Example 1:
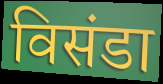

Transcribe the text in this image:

विसंडा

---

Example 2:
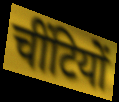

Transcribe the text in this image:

चींटियों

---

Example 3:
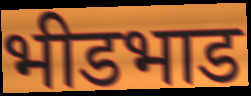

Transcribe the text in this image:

भीडभाड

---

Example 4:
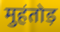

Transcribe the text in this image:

मुहंतोड़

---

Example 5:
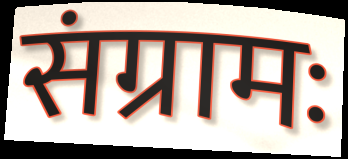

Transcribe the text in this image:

संग्रामः